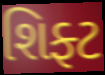
શિફ્ટ